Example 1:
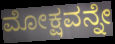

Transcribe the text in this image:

ಮೋಕ್ಷವನ್ನೇ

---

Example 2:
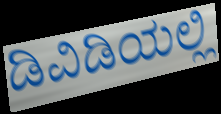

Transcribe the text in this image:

ಡಿವಿಡಿಯಲ್ಲಿ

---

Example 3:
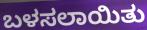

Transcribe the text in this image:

ಬಳಸಲಾಯಿತು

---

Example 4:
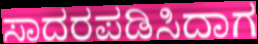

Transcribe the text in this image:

ಸಾದರಪಡಿಸಿದಾಗ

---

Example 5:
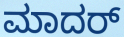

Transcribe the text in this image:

ಮಾದರ್